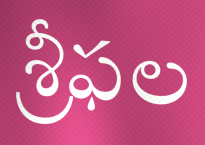
శ్రీఫల